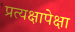
प्रत्यक्षापेक्षा